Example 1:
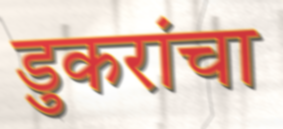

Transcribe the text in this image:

डुकरांचा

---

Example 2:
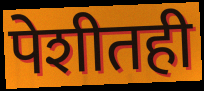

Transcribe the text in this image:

पेशीतही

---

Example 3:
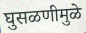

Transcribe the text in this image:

घुसळणीमुळे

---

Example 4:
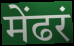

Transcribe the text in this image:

मेंढरं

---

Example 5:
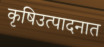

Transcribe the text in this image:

कृषिउत्पादनात